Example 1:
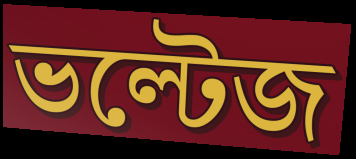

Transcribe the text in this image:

ভল্টেজ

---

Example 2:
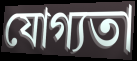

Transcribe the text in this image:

যোগ্য়তা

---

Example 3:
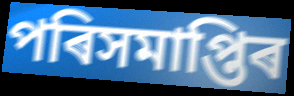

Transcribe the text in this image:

পৰিসমাপ্তিৰ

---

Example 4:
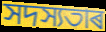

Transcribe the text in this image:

সদস্যতাৰ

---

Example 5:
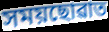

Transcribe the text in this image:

সময়ছোৱাত